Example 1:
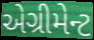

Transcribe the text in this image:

એગ્રીમેન્ટ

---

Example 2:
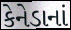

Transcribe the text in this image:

કેનેડાનાં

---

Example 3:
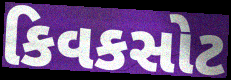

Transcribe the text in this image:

કિવકસોટ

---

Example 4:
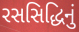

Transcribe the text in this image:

રસસિદ્ધિનું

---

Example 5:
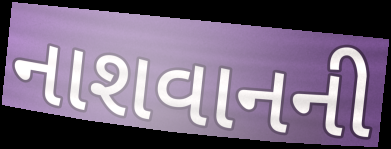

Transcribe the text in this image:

નાશવાનની